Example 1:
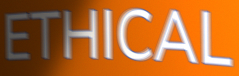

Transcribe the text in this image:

ETHICAL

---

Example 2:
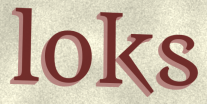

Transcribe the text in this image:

loks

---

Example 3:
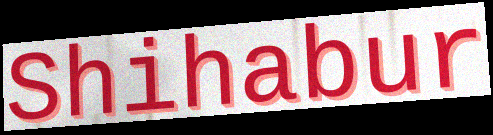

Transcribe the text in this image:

Shihabur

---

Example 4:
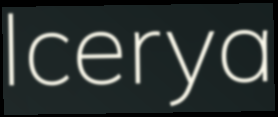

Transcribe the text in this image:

Icerya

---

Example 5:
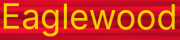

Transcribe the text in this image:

Eaglewood